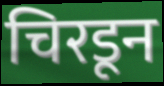
चिरडून